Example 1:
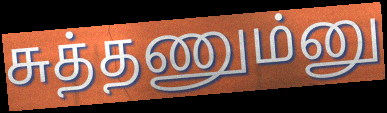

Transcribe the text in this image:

சுத்தணும்னு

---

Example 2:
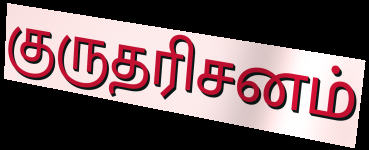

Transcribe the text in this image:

குருதரிசனம்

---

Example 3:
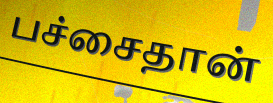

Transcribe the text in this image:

பச்சைதான்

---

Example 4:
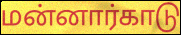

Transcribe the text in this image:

மன்னார்காடு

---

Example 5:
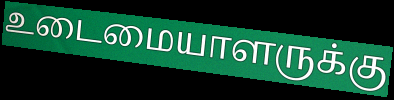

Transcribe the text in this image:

உடைமையாளருக்கு